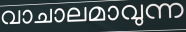
വാചാലമാവുന്ന